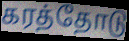
கரத்தோடு